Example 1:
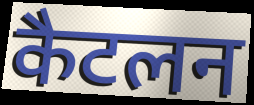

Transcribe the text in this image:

कैटलन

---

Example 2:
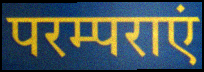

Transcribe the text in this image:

परम्पराएं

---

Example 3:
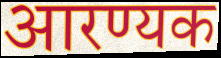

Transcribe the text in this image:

आरण्यक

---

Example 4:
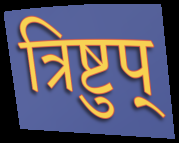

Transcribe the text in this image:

त्रिष्टुप्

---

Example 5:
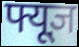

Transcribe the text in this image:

फ्यूज़